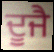
ਦੂਜੈ